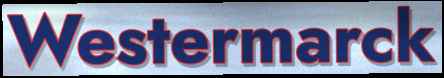
Westermarck